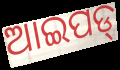
ଆଇପଡ୍